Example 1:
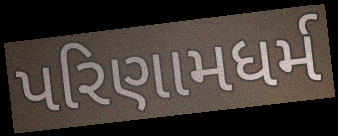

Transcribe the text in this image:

પરિણામધર્મ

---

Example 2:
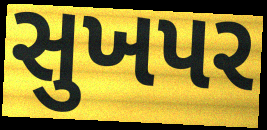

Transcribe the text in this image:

સુખપર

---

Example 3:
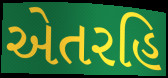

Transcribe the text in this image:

એતરહિ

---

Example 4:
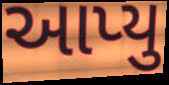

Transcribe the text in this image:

આપ્યુ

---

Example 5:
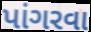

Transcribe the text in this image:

પાંગરવા